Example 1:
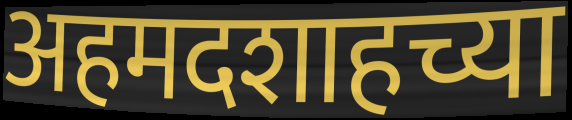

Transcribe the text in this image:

अहमदशाहच्या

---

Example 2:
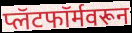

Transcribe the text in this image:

प्लॅटफॉर्मवरून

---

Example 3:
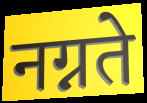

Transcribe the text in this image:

नग्नते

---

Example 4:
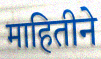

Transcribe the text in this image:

माहितीने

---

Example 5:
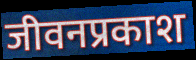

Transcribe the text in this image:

जीवनप्रकाश